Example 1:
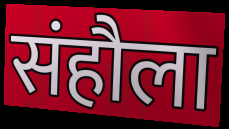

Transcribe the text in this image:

संहौला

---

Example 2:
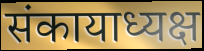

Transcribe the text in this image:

संकायाध्यक्ष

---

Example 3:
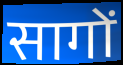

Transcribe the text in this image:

सागों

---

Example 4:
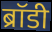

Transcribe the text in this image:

ब्रॉडी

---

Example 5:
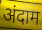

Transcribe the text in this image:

अंदाम